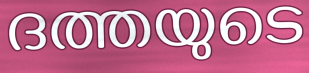
ദത്തയുടെ